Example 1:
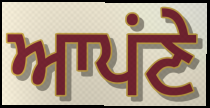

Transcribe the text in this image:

ਆਪਂਣੇ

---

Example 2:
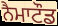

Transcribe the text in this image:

ਨੈਮਾਟੌਡ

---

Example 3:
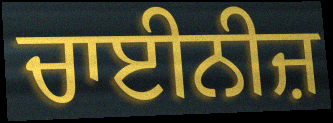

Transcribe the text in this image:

ਚਾਈਨੀਜ਼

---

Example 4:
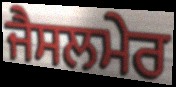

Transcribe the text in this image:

ਜੈਸਲਮੇਰ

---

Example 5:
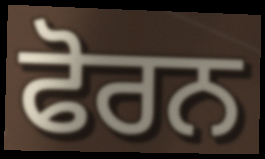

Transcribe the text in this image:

ਫੋਰਨ